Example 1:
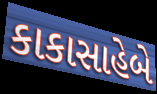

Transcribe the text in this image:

કાકાસાહેબે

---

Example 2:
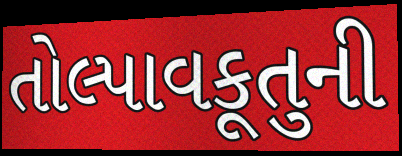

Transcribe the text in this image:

તોલ્પાવકૂતુની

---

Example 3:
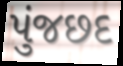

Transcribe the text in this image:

પુંજછદ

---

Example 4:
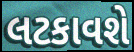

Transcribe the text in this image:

લટકાવશે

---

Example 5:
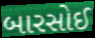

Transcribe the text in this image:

બારસોઈ